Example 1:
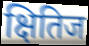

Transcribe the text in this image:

क्षितिज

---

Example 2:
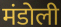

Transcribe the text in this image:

मंडोली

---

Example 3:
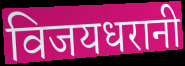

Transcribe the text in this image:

विजयधरानी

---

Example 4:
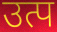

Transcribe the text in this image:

उत्प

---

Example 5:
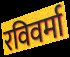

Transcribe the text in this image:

रविवर्मा